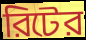
রিটের